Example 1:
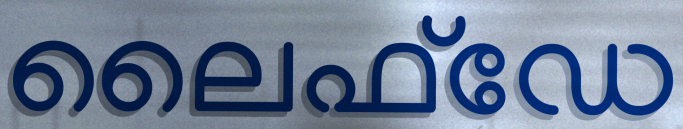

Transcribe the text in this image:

ലൈഫ്ഡേ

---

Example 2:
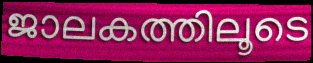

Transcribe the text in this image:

ജാലകത്തിലൂടെ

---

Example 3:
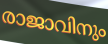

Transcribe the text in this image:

രാജാവിനും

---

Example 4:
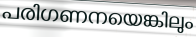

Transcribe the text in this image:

പരിഗണനയെങ്കിലും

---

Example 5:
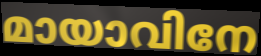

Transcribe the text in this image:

മായാവിനേ